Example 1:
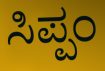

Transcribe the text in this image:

ಸಿಪ್ಪಂ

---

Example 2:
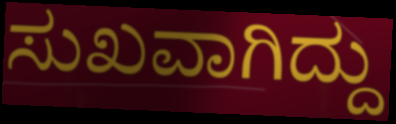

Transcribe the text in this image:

ಸುಖವಾಗಿದ್ದು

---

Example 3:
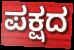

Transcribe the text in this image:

ಪಕ್ಷದ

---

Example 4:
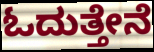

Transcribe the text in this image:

ಓದುತ್ತೇನೆ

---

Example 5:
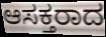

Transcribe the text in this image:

ಆಸಕ್ತರಾದ